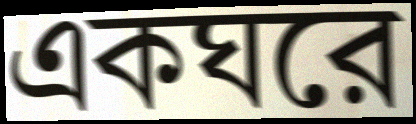
একঘরে